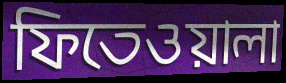
ফিতেওয়ালা